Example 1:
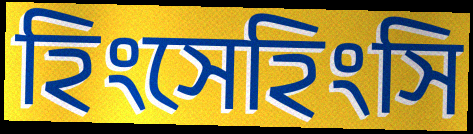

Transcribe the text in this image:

হিংসেহিংসি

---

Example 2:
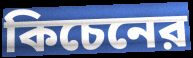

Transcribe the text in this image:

কিচেনের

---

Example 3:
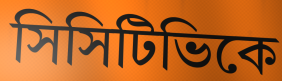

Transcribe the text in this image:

সিসিটিভিকে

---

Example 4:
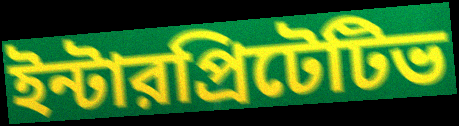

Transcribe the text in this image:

ইন্টারপ্রিটেটিভ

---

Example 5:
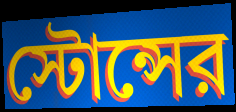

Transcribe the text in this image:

স্টোন্সের